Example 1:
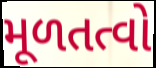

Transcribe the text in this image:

મૂળતત્વો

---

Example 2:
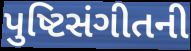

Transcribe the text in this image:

પુષ્ટિસંગીતની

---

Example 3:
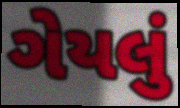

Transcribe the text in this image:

ગેયલું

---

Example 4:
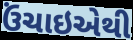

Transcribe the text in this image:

ઉંચાઇએથી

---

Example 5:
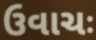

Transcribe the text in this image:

ઉવાચઃ